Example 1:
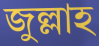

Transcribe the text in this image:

জুল্লাহ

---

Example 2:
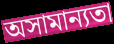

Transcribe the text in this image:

অসামান্যতা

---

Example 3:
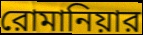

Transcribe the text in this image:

রোমানিয়ার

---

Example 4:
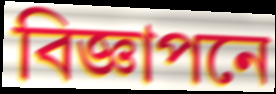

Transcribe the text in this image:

বিজ্ঞাপনে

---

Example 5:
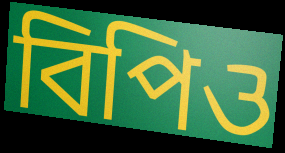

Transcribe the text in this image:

বিপিও